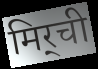
मिर्ची